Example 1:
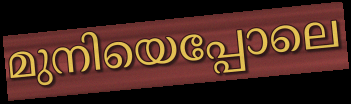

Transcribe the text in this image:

മുനിയെപ്പോലെ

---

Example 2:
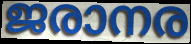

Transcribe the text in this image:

ജരാനര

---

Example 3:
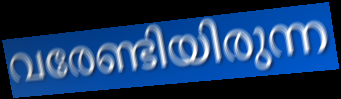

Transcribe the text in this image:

വരേണ്ടിയിരുന്ന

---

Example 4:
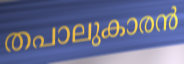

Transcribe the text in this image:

തപാലുകാരൻ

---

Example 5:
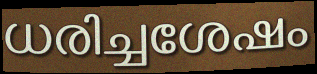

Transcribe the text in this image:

ധരിച്ചശേഷം